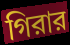
গিরার